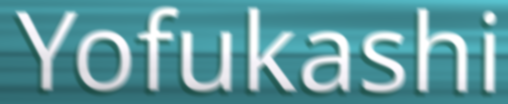
Yofukashi